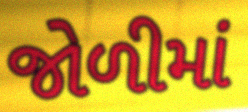
જોળીમાં